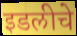
इडलीचे